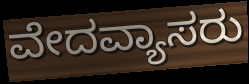
ವೇದವ್ಯಾಸರು